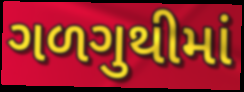
ગળગુથીમાં